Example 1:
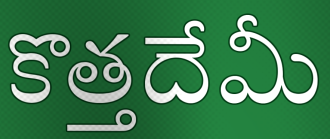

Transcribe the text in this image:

కొత్తదేమీ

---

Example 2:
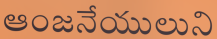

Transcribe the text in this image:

ఆంజనేయులుని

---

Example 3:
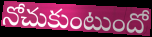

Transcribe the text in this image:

నోచుకుంటుందో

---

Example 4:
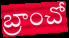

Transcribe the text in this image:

బ్రాంచో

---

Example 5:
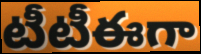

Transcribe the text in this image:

టీటీఈగా